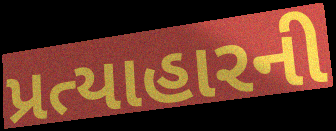
પ્રત્યાહારની